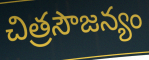
చిత్రసౌజన్యం